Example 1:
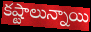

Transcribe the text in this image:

కష్టాలున్నాయి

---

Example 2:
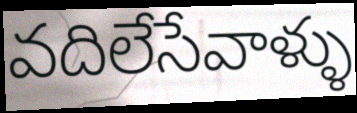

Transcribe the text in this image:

వదిలేసేవాళ్ళు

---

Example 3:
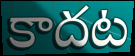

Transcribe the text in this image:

కాదట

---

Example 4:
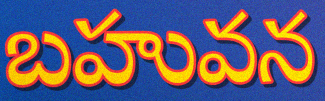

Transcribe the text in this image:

బహువన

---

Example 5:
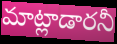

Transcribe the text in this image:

మాట్లాడారనీ